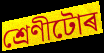
শ্ৰেণীটোৰ